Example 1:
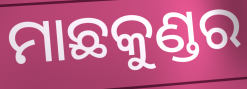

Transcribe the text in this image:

ମାଛକୁଣ୍ଡର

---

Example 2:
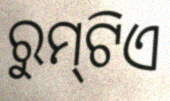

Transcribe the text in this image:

ରୁମ୍‌ଟିଏ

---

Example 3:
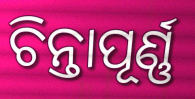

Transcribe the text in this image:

ଚିନ୍ତାପୂର୍ଣ୍ଣ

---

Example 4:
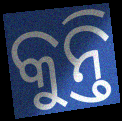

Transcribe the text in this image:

କୁନ୍ତି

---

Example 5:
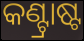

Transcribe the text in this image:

କଣ୍ଟ୍ରାଷ୍ଟ